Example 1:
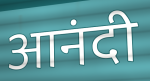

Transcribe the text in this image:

आनंदी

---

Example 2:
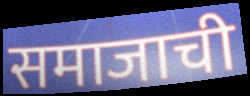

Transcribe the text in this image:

समाजाची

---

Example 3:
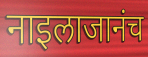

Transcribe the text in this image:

नाइलाजानंच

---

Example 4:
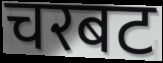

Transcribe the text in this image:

चरबट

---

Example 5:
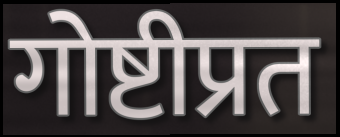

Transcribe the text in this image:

गोष्टीप्रत